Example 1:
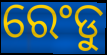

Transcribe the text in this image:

ରେଂଡୁ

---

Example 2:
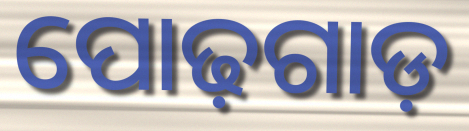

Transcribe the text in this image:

ପୋଢ଼ଗାଡ଼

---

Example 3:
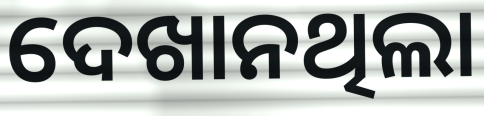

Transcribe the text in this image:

ଦେଖାନଥିଲା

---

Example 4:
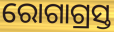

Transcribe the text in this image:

ରୋଗାଗ୍ରସ୍ତ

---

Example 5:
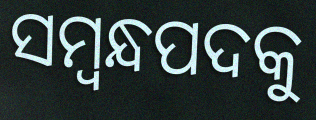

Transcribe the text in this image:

ସମ୍ବନ୍ଧପଦକୁ